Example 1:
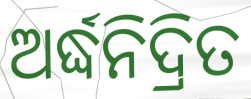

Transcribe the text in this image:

ଅର୍ଦ୍ଧନିଦ୍ରିତ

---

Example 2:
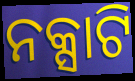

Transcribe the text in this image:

ନକ୍ସାଟି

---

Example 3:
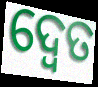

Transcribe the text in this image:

ଦ୍ବେତ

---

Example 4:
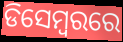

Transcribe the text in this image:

ଡିସେମ୍ବରରେ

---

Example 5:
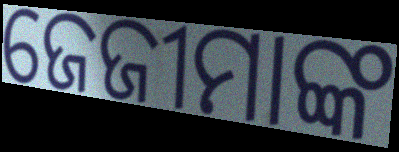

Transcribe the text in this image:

ଜେଜୀମାଙ୍କ